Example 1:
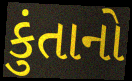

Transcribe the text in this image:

કુંતાનો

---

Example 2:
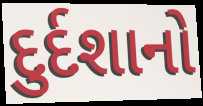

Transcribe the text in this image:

દુર્દશાનો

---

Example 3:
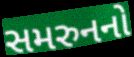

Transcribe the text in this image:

સમરુનનો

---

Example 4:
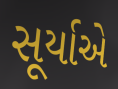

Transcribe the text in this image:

સૂર્યાએ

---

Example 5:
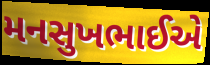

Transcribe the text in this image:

મનસુખભાઈએ